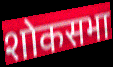
शोकसभा